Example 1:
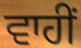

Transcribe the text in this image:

ਵਾਹੀਂ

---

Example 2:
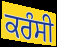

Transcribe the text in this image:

ਕਰੰਸੀ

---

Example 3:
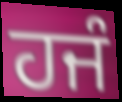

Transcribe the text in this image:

ਹਜੰ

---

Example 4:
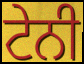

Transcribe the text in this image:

ਟੇਨੀ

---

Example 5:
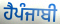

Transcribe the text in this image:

ਹੈਪੰਜਾਬੀ